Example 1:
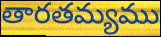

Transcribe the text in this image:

తారతమ్యము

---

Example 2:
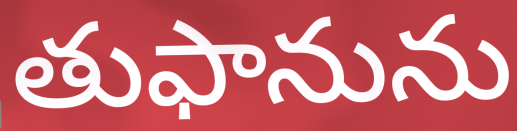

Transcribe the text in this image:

తుఫానును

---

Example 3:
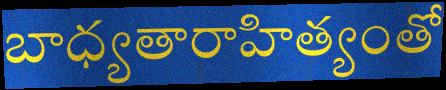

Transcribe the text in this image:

బాధ్యతారాహిత్యంతో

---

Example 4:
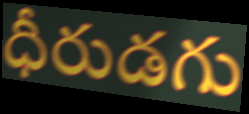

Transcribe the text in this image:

ధీరుడగు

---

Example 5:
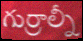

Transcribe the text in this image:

గుర్రాల్నీ